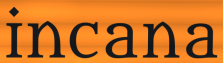
incana